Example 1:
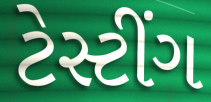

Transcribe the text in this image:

ટેસ્ટીંગ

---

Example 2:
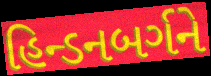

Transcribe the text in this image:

હિન્ડનબર્ગને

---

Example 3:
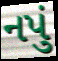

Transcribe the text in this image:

નપું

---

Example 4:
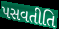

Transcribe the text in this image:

પસવતીતિ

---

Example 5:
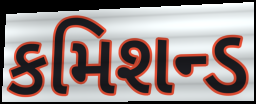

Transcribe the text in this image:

કમિશન્ડ